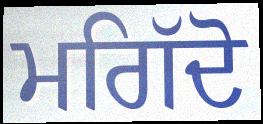
ਮਗਿੱਦੋ